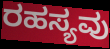
ರಹಸ್ಯವು